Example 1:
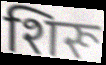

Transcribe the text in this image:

शिरू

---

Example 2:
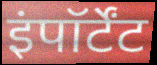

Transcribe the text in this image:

इंपॉर्टेंट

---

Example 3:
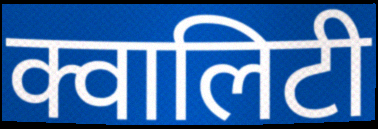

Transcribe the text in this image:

क्वालिटी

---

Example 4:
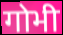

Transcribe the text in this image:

गोभी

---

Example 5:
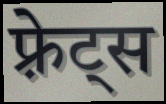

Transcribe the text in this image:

फ़्रेट्स